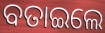
ବତାଇଲେ